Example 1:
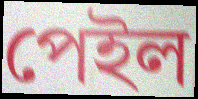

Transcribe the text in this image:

পেইল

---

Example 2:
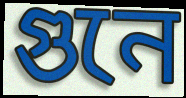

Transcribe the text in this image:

গুনে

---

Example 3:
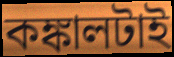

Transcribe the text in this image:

কঙ্কালটাই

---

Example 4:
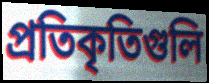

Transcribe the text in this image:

প্রতিকৃতিগুলি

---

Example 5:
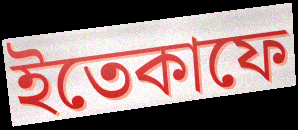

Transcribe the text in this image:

ইতেকাফে